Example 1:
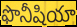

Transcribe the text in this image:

ఫొనీషియా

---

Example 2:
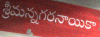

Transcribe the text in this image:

శ్రీమన్నగరనాయికా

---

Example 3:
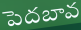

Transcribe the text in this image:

పెదబావ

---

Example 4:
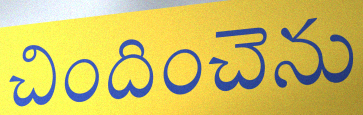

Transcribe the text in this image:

చిందించెను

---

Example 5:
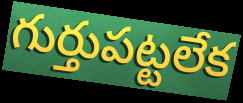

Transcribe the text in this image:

గుర్తుపట్టలేక